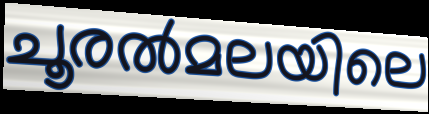
ചൂരൽമലയിലെ